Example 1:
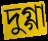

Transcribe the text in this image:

দুগ্গা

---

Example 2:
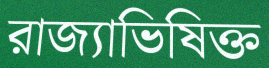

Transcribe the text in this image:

রাজ্যাভিষিক্ত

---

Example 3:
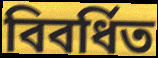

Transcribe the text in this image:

বিবর্ধিত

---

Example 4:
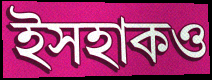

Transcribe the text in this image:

ইসহাকও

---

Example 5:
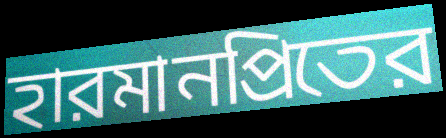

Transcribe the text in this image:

হারমানপ্রিতের